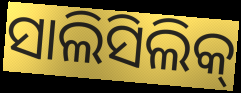
ସାଲିସିଲିକ୍